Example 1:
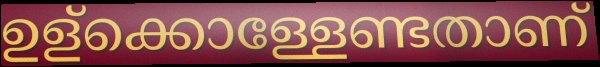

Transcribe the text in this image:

ഉള്ക്കൊള്ളേണ്ടതാണ്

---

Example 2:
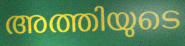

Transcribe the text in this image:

അത്തിയുടെ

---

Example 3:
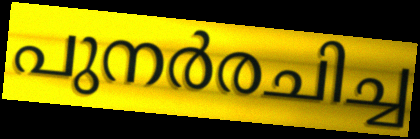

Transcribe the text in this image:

പുനർരചിച്ച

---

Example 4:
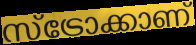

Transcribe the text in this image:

സ്ട്രോക്കാണ്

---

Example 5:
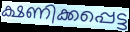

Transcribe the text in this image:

ക്ഷണിക്കപ്പെട്ട